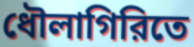
ধৌলাগিরিতে